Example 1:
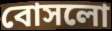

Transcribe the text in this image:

বোসলো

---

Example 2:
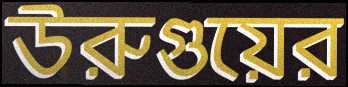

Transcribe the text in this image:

উরুগুয়ের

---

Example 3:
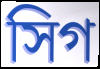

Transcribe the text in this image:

সিগ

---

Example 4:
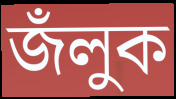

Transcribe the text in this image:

জঁলুক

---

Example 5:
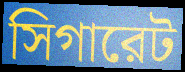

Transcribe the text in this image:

সিগারেট